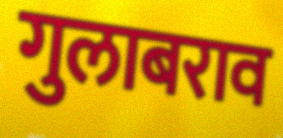
गुलाबराव